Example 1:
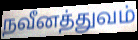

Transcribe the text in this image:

நவீனத்துவம்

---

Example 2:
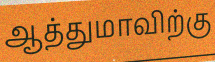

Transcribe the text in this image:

ஆத்துமாவிற்கு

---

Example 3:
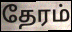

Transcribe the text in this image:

தேரம்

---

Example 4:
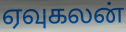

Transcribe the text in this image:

ஏவுகலன்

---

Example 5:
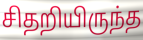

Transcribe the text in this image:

சிதறியிருந்த